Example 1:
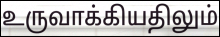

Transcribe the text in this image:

உருவாக்கியதிலும்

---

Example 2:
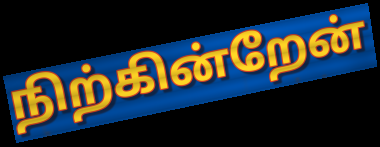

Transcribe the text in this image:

நிற்கின்றேன்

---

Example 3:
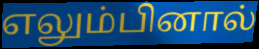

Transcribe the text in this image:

எலும்பினால்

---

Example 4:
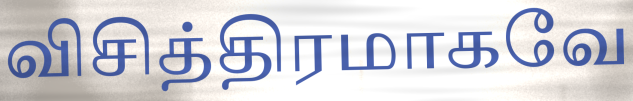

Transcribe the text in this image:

விசித்திரமாகவே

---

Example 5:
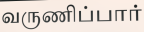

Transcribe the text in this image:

வருணிப்பார்